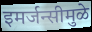
इमर्जन्सीमुळे